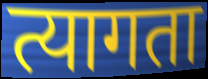
त्यागता